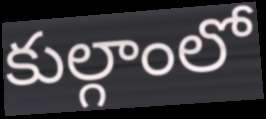
కుల్గాంలో